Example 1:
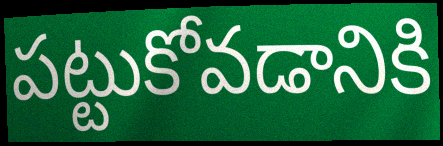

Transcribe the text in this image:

పట్టుకోవడానికి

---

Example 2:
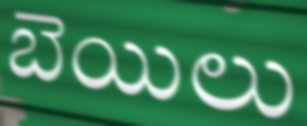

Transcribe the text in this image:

బెయిలు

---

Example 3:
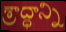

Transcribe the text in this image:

శ్రాద్ధాన్ని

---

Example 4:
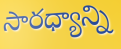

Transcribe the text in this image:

సారధ్యాన్ని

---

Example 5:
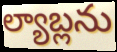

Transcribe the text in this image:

ల్యాబ్లను